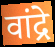
वांद्रे